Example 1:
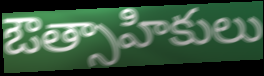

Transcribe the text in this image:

ఔత్సాహికులు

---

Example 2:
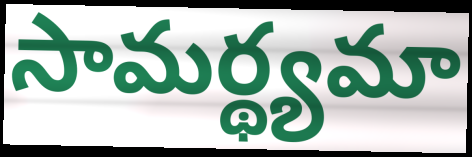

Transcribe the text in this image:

సామర్థ్యమా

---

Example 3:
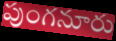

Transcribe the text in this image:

పుంగనూరు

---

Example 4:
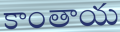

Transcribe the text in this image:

కాంతాయ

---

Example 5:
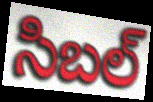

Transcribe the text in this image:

సిబల్